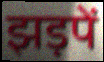
झड़पें